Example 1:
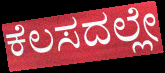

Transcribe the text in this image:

ಕೆಲಸದಲ್ಲೇ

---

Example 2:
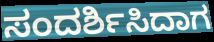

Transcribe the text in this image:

ಸಂದರ್ಶಿಸಿದಾಗ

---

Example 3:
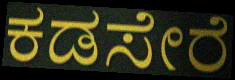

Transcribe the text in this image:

ಕಡಸೇರೆ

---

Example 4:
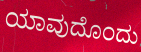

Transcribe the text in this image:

ಯಾವುದೊಂದು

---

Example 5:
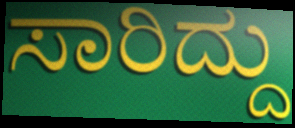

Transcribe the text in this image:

ಸಾರಿದ್ದು